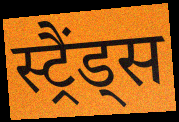
स्ट्रैंड्स